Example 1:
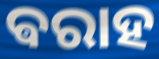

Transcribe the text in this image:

ଵରାହ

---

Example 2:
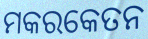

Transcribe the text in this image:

ମକରକେତନ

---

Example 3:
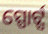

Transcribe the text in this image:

ସ୍ପୋର୍ଟ୍ସ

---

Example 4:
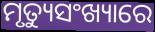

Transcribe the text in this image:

ମୃତ୍ୟୁସଂଖ୍ୟାରେ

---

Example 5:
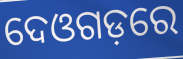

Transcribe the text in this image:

ଦେଓଗଡ଼ରେ